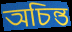
অচিন্ত